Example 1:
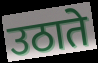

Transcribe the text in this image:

उठाते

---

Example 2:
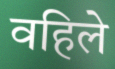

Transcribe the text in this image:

वहिले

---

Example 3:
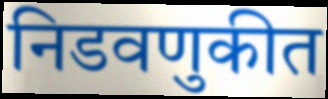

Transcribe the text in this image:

निडवणुकीत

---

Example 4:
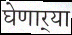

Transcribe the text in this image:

घेणार्या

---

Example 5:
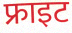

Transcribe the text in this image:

फ्राइट